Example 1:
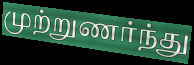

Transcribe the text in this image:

முற்றுணர்ந்து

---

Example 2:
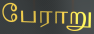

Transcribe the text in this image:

பேராறு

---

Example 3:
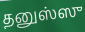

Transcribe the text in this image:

தனுஸ்ஸு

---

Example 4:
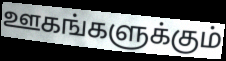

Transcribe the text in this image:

ஊகங்களுக்கும்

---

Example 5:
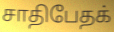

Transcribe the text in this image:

சாதிபேதக்